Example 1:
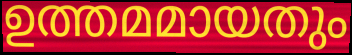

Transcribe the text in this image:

ഉത്തമമായതും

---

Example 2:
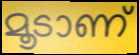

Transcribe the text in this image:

മൂടാണ്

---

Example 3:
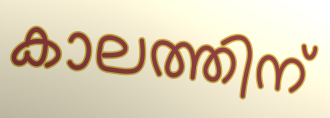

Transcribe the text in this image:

കാലത്തിന്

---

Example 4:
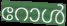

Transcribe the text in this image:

റോൾ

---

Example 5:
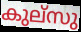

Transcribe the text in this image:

കുല്സു